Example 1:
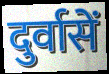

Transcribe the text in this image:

दुर्वासें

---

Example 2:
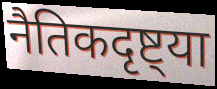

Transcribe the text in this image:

नैतिकदृष्ट्या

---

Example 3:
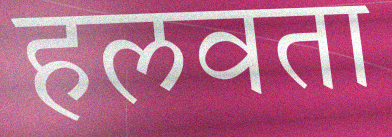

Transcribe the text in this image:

हलवता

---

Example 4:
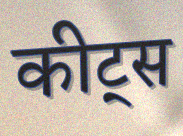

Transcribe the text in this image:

कीट्‌स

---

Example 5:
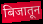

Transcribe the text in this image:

बिजातून